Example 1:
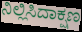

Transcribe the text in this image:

ನಿಲ್ಲಿಸಿದಾಕ್ಷಣ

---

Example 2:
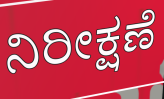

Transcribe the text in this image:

ನಿರೀಕ್ಷಣೆ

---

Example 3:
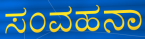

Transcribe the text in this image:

ಸಂವಹನಾ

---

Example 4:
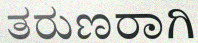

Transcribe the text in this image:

ತರುಣರಾಗಿ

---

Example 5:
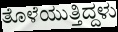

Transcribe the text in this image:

ತೊಳೆಯುತ್ತಿದ್ದಳು